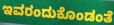
ಇವರಂದುಕೊಂಡಂತೆ